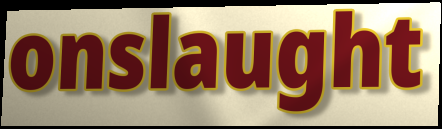
onslaught